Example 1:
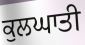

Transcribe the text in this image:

ਕੁਲਘਾਤੀ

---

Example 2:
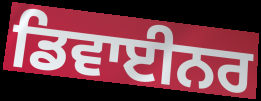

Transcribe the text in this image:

ਡਿਵਾਈਨਰ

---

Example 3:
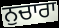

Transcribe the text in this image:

ਨੁਚਾਰਾ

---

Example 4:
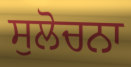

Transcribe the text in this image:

ਸੁਲੋਚਨਾ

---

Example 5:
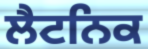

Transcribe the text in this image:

ਲੈਟਨਿਕ